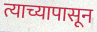
त्याच्यापासून